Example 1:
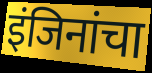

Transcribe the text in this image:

इंजिनांचा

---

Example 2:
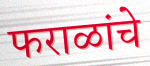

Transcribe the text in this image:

फराळांचे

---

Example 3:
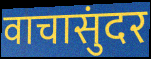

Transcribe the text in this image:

वाचासुंदर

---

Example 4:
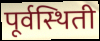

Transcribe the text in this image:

पूर्वस्थिती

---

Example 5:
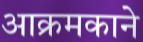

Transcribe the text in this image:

आक्रमकाने